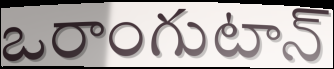
ఒరాంగుటాన్